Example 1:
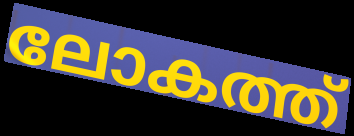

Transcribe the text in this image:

ലോകത്ത്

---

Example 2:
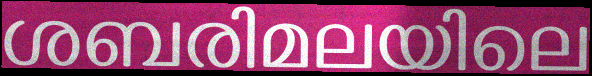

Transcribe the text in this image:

ശബരിമലയിലെ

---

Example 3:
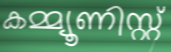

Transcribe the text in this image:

കമ്മ്യൂണിസ്റ്റ്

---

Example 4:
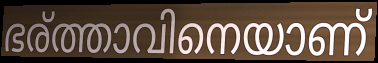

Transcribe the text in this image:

ഭര്ത്താവിനെയാണ്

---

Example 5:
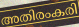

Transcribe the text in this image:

അതിരംകരി